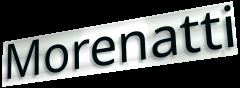
Morenatti